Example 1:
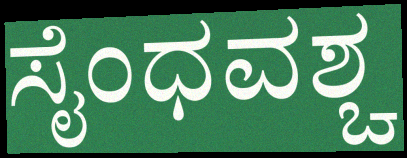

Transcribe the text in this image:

ಸೈಂಧವಶ್ಚ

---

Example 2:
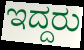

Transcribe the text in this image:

ಇದ್ದರು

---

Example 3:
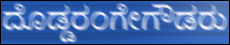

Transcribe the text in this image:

ದೊಡ್ಡರಂಗೇಗೌಡರು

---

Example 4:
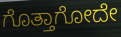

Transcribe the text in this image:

ಗೊತ್ತಾಗೋದೇ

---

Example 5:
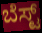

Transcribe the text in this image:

ಬೆಸ್ಟ್